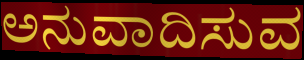
ಅನುವಾದಿಸುವ